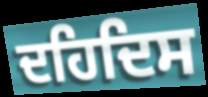
ਦਹਿਦਿਸ